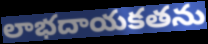
లాభదాయకతను